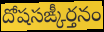
దోషసఙ్కీర్తనం